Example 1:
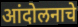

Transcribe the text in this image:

आंदोलनाचे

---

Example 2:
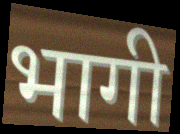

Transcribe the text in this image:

भागी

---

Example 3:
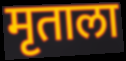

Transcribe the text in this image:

मृताला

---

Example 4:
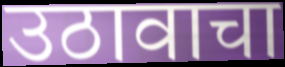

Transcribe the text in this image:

उठावाचा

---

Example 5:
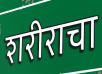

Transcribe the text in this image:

शरीराचा